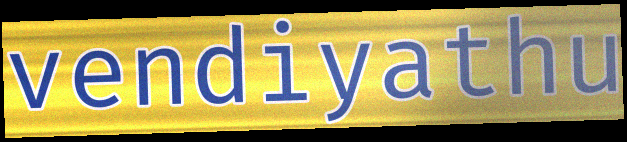
vendiyathu